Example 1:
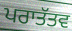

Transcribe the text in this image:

ਪਰਾਤੱਤਵ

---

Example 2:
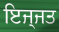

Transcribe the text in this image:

ਇਜ੍ਜਤ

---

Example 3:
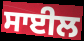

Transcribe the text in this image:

ਸਾਈਲ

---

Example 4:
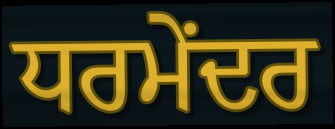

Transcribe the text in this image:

ਧਰਮੇਂਦਰ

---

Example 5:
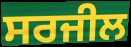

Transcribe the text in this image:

ਸਰਜੀਲ